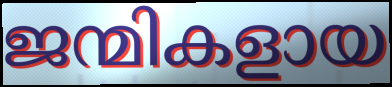
ജന്മികളായ